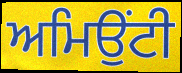
ਅਮਿਉਂਟੀ